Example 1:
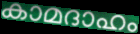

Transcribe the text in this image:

കാമദാഹം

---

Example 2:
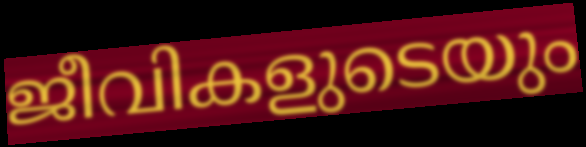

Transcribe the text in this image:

ജീവികളുടെയും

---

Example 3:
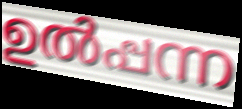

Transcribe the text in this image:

ഉൽപ്പന്ന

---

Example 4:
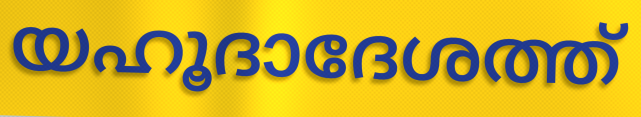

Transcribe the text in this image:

യഹൂദാദേശത്ത്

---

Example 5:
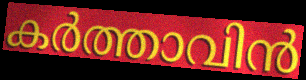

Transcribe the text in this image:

കർത്താവിൻ